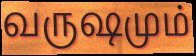
வருஷமும்